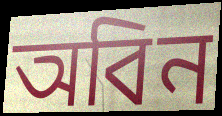
অবিন